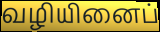
வழியினைப்